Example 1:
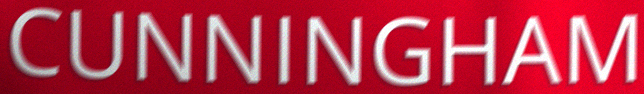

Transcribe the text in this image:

CUNNINGHAM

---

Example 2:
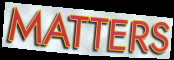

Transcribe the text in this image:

MATTERS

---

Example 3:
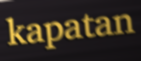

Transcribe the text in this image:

kapatan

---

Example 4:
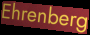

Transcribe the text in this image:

Ehrenberg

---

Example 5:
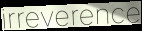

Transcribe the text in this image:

irreverence